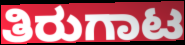
ತಿರುಗಾಟ